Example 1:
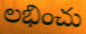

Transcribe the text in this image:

లభించు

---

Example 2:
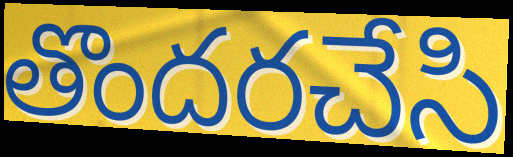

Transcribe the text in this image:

తొందరచేసి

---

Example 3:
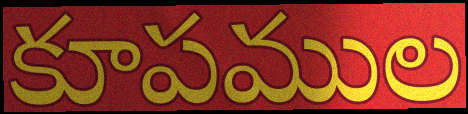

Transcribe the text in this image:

కూపముల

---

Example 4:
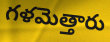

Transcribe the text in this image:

గళమెత్తారు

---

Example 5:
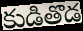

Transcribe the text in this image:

కుడితొడ